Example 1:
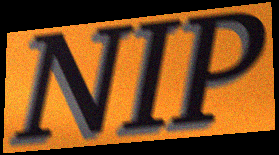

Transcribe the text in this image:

NIP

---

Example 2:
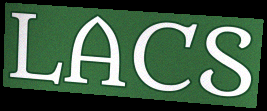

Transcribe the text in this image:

LACS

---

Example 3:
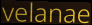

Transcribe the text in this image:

velanae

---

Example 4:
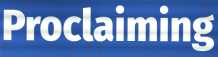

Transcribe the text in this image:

Proclaiming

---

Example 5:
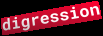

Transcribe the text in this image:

digression